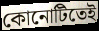
কোনোটিতেই